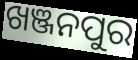
ଖଞ୍ଜନପୁର